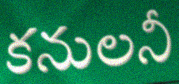
కనులనీ